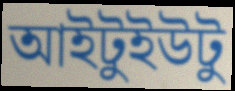
আইটুইউটু